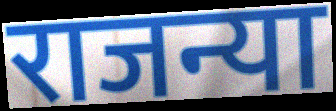
राजन्या